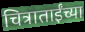
चित्राताईंच्या